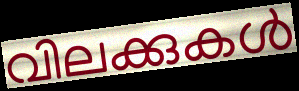
വിലക്കുകൾ